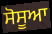
ਸੋਸੂਆ